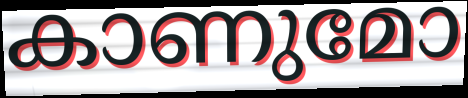
കാണുമോ